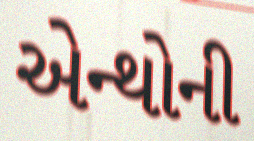
એન્થોની